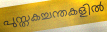
പുസ്തകച്ചന്തകളിൽ